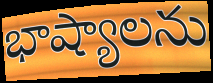
భాష్యాలను